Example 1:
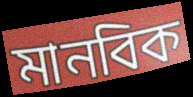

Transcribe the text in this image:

মানবিক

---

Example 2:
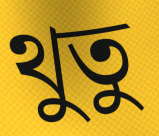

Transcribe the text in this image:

থুতু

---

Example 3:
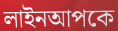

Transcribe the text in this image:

লাইনআপকে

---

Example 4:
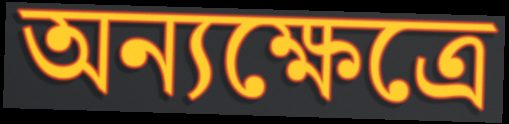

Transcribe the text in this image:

অন্যক্ষেত্রে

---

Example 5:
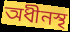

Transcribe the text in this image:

অধীনস্থ